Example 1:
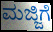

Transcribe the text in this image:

ಮಜ್ಜಿಗೆ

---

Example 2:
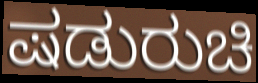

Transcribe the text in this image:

ಷಡುರುಚಿ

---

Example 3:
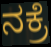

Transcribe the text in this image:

ನಕ್ರೆ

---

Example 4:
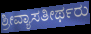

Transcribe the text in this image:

ಶ್ರೀವ್ಯಾಸತೀರ್ಥರು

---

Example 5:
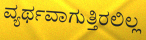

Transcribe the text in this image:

ವ್ಯರ್ಥವಾಗುತ್ತಿರಲಿಲ್ಲ